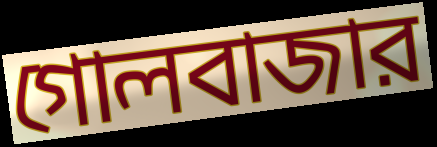
গোলবাজার